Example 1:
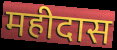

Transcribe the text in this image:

महीदास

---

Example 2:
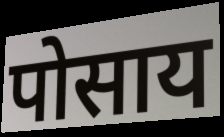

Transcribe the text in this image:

पोसाय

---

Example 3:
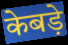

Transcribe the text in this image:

केबड़े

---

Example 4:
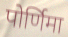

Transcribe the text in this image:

पोर्णिमा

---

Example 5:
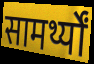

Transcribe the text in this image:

सामर्थ्यों